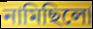
নামিছিলো